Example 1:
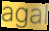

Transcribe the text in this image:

agal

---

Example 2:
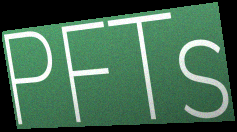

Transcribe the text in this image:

PFTs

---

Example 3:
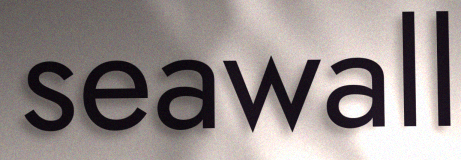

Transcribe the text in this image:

seawall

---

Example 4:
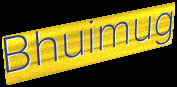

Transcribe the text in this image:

Bhuimug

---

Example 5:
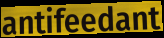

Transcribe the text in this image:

antifeedant